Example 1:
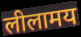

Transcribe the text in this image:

लीलामय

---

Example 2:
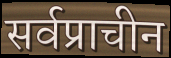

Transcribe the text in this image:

सर्वप्राचीन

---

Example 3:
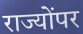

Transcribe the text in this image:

राज्योंपर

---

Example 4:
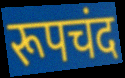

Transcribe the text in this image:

रूपचंद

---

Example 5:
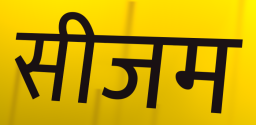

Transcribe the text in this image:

सीजम